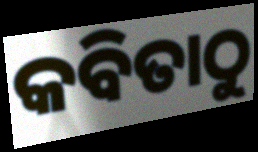
କବିତାଠୁ